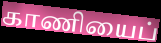
காணியைப்